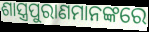
ଶାସ୍ତ୍ରପୁରାଣମାନଙ୍କରେ